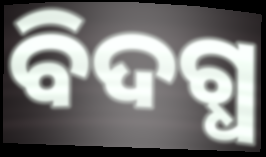
ବିଦଗ୍ଧ